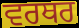
ਵਰਥਰ